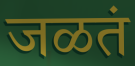
जळतं